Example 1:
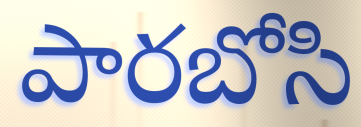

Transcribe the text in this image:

పారబోసి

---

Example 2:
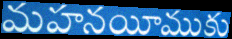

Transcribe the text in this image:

మహనయీముకు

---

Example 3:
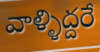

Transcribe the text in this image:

వాళ్ళిద్దరే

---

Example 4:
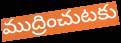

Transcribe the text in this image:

ముద్రించుటకు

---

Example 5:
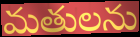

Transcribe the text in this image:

మతులను